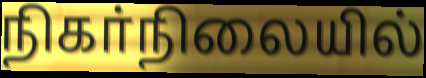
நிகர்நிலையில்